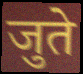
जुते